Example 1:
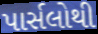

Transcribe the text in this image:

પાર્સલોથી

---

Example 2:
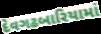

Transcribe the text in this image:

દેવગઢબારિયામાં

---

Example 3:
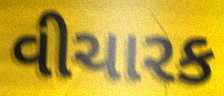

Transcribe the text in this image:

વીચારક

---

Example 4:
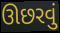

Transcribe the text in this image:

ઊછરવું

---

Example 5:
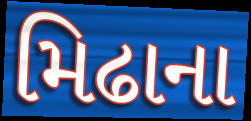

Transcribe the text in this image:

મિઢાના